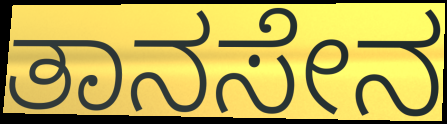
ತಾನಸೇನ